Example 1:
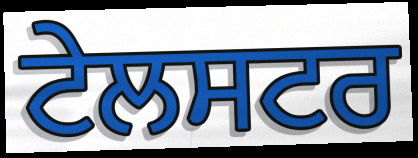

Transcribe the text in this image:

ਟੇਲਸਟਰ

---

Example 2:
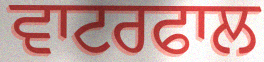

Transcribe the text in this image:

ਵਾਟਰਫਾਲ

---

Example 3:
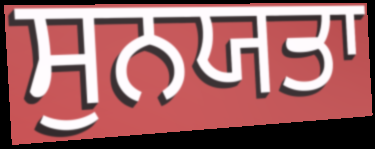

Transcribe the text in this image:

ਸੁਨਯਤਾ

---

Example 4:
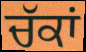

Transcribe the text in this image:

ਚੱਕਾਂ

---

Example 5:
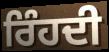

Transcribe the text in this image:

ਰਿੰਹਦੀ